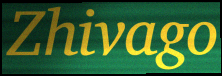
Zhivago